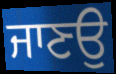
ਜਾਣਉ